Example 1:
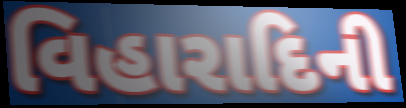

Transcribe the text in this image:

વિહારાદિની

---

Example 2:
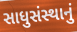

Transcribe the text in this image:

સાધુસંસ્થાનું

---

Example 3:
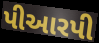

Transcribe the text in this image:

પીઆરપી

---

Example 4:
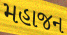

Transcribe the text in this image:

મહાજન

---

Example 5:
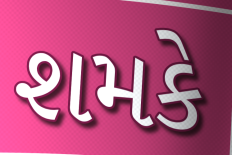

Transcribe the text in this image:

શમકે